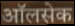
ऑलसेक